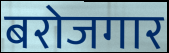
बरोजगार